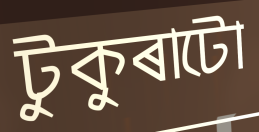
টুকুৰাটো